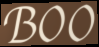
BOO